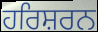
ਹਰਿਸ਼ਰਨ